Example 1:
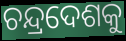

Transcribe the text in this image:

ଚନ୍ଦ୍ରଦେଶକୁ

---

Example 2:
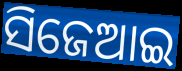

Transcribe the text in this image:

ସିଜେଆଇ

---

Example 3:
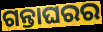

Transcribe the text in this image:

ଗନ୍ତାଘରର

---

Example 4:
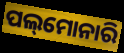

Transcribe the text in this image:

ପଲ୍‌ମୋନାରି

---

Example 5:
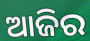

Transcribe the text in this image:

ଆଜିର